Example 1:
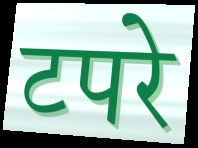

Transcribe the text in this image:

टपरे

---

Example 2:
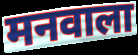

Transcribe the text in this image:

मनवाला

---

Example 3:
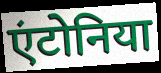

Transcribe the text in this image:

एंटोनिया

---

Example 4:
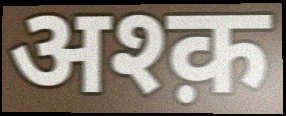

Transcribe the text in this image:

अश्क़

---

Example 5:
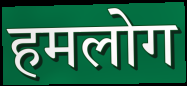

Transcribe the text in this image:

हमलोग